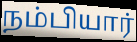
நம்பியார்